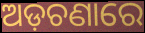
ଅଡ଼ଚଣାରେ